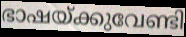
ഭാഷയ്ക്കുവേണ്ടി